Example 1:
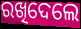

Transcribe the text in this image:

ରଖିଦେଲେ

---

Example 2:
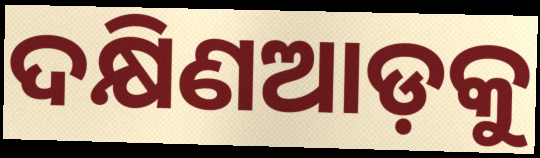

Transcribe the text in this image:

ଦକ୍ଷିଣଆଡ଼କୁ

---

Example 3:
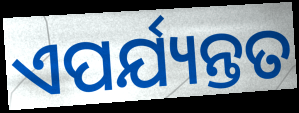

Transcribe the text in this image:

ଏପର୍ଯ୍ୟନ୍ତତ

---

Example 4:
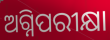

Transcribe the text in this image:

ଅଗ୍ନିପରୀକ୍ଷା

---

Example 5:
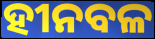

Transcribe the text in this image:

ହୀନବଳ